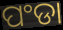
ପଂଡା